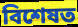
বিশেষত